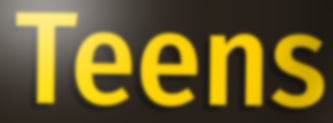
Teens